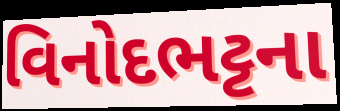
વિનોદભટ્ટના